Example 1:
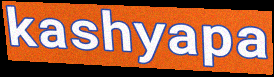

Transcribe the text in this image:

kashyapa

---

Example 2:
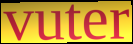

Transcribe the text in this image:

vuter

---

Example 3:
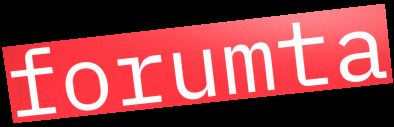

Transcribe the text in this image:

forumta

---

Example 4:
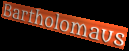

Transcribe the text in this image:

Bartholomaus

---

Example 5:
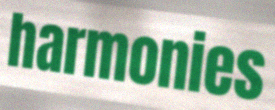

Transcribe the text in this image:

harmonies